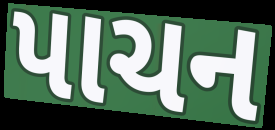
પાચન